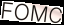
FOMC